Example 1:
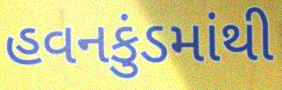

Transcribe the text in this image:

હવનકુંડમાંથી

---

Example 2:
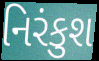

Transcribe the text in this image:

નિરંકુશ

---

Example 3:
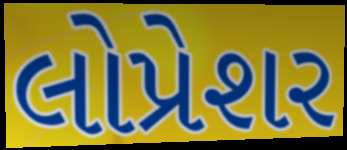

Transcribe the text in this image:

લોપ્રેશર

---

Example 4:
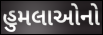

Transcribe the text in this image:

હુમલાઓનો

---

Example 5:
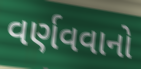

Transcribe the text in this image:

વર્ણવવાનો